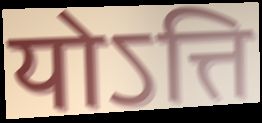
योऽत्ति